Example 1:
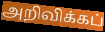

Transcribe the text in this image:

அறிவிக்கப்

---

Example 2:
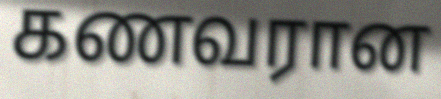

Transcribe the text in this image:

கணவரான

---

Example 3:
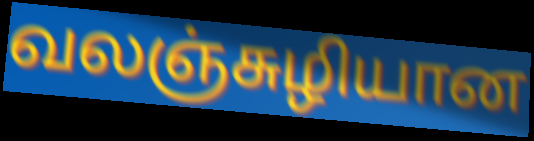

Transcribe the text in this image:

வலஞ்சுழியான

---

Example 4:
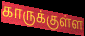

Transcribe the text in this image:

காருக்குள்ள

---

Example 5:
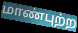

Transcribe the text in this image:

மாண்புற்ற